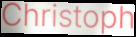
Christoph